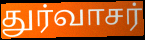
துர்வாசர்